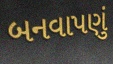
બનવાપણું